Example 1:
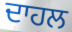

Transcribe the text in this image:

ਦਾਹਲ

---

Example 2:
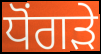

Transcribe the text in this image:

ਧੋਂਗੜੇ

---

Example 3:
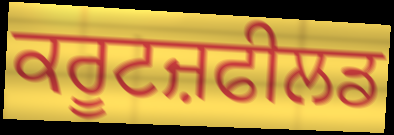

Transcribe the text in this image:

ਕਰੂਟਜ਼ਫੀਲਡ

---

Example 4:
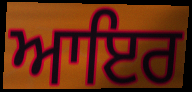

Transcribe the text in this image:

ਆਇਰ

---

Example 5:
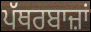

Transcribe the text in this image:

ਪੱਥਰਬਾਜ਼ਾਂ